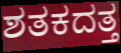
ಶತಕದತ್ತ